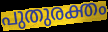
പുതുരക്തം